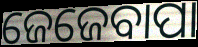
ଜେଜେବାପା